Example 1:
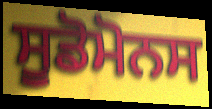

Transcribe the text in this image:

ਸੂਡੋਮੋਨਸ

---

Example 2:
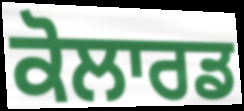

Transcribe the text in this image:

ਕੋਲਾਰਡ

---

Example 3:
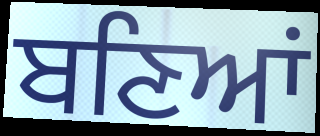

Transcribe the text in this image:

ਬਣਿਆਂ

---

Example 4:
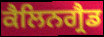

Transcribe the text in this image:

ਕੈਲਿਨਗ੍ਰੈਡ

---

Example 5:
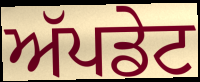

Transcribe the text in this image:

ਅੱਪਡੇਟ